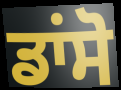
ਡਾਂਸੋ